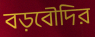
বড়বৌদির